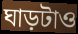
ঘাড়টাও